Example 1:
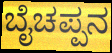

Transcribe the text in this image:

ಬೈಚಪ್ಪನ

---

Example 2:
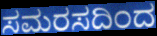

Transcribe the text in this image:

ಸಮರಸದಿಂದ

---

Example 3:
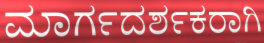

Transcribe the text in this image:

ಮಾರ್ಗದರ್ಶಕರಾಗಿ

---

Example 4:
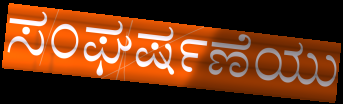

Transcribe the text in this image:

ಸಂಘರ್ಷಣೆಯು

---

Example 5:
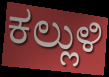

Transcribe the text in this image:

ಕಲ್ಲುಳಿ